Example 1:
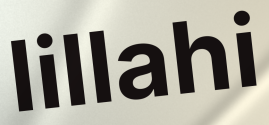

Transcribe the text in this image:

lillahi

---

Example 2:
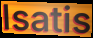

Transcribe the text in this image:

Isatis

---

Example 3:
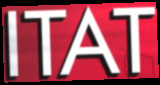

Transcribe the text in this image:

ITAT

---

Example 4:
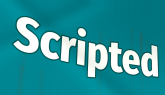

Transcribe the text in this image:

Scripted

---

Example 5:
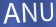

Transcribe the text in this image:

ANU